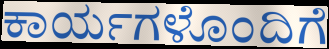
ಕಾರ್ಯಗಳೊಂದಿಗೆ